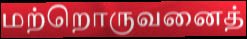
மற்றொருவனைத்